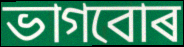
ভাগবোৰ